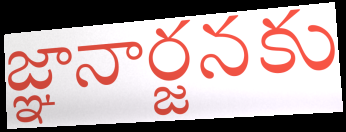
జ్ఞానార్జనకు